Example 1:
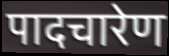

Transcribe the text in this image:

पादचारेण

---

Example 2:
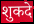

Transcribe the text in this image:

शुकदे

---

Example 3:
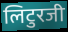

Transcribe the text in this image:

लिटुरजी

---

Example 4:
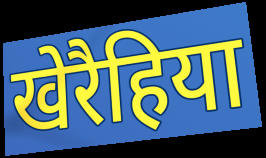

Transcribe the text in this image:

खेरैहिया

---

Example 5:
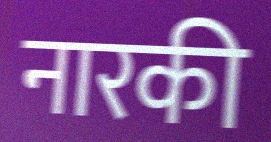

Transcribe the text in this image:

नारकी